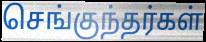
செங்குந்தர்கள்